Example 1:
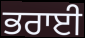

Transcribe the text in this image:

ਭਰਾਈ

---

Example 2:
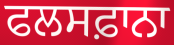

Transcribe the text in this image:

ਫਲਸਫ਼ਾਨਾ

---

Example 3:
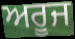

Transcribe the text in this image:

ਅਰੂਜ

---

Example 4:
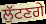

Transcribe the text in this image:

ਲੁੱਟਣਗੇ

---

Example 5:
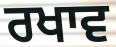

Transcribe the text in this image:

ਰਖਾਵ